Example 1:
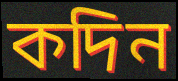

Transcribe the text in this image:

কদিন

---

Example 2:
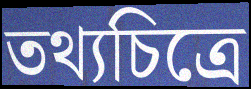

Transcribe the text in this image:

তথ্যচিত্রে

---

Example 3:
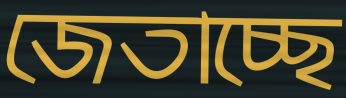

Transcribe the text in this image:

জেতাচ্ছে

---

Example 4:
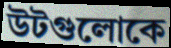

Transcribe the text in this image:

উটগুলোকে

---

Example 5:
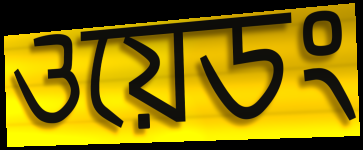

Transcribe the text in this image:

ওয়েডং